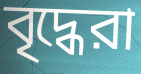
বৃদ্ধেরা